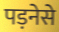
पड़नेसे